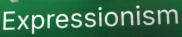
Expressionism